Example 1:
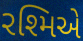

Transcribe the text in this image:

રશ્મિએ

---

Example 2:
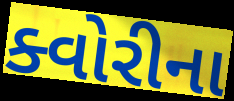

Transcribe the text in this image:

ક્વોરીના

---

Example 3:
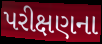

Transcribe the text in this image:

પરીક્ષણના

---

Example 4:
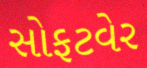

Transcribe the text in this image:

સોફટવેર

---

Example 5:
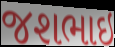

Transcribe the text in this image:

જશભાઇ